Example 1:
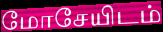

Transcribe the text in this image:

மோசேயிடம்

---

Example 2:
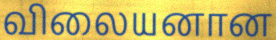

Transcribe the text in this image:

விலையனான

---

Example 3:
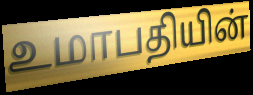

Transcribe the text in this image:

உமாபதியின்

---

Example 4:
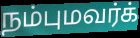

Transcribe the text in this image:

நம்புமவர்க்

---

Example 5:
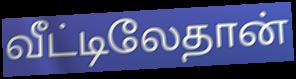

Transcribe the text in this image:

வீட்டிலேதான்